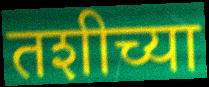
तशीच्या